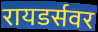
रायडर्सवर